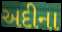
અદીના